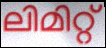
ലിമിറ്റ്